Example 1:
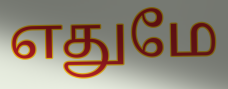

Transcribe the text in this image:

எதுமே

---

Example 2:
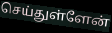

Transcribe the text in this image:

செய்துள்ளேன்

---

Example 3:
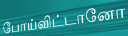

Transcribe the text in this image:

போய்விட்டானோ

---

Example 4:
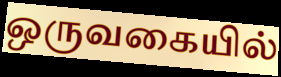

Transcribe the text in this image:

ஒருவகையில்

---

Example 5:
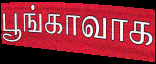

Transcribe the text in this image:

பூங்காவாக